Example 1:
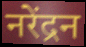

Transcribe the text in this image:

नरेंद्रन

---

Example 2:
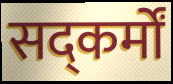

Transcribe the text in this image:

सद्कर्मों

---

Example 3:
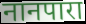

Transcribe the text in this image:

नानपारा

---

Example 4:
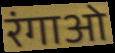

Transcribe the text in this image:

रंगाओ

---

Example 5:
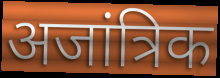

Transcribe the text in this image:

अजांत्रिक